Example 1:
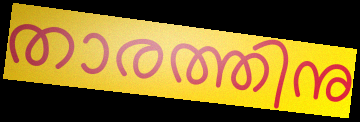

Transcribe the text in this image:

താരത്തിനു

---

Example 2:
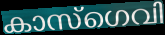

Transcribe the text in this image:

കാസ്ഗെവി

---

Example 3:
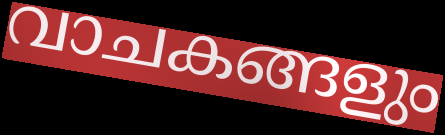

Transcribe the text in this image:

വാചകങ്ങളും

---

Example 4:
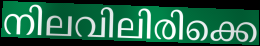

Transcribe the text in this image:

നിലവിലിരിക്കെ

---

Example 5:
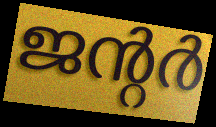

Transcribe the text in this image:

ജന്റർ